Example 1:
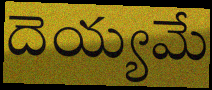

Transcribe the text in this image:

దెయ్యమే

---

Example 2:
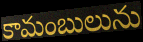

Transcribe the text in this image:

కామంబులును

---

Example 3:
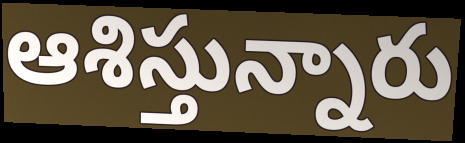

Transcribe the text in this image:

ఆశిస్తున్నారు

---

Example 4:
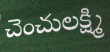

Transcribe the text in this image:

చెంచులక్ష్మి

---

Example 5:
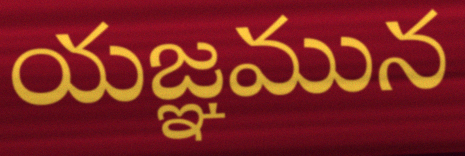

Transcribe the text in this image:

యజ్ఞమున